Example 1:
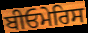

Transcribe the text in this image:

ਬੀਓਮੇਰਿਸ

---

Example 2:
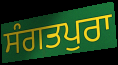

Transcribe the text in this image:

ਸੰਗਤਪੁਰਾ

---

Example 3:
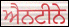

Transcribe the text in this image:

ਐਨਟੀਨੇ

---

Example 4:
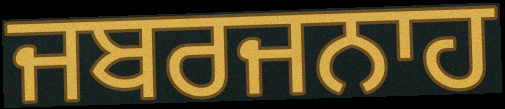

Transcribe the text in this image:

ਜਬਰਜਨਾਹ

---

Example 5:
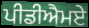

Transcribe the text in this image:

ਪੀਡੀਐਮਏ